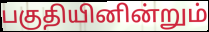
பகுதியினின்றும்